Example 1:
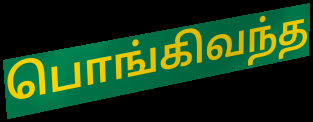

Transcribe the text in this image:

பொங்கிவந்த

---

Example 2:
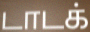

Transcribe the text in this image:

டாடக்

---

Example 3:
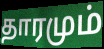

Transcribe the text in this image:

தாரமும்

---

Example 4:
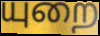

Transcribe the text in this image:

யுறை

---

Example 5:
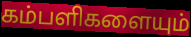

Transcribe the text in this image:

கம்பளிகளையும்